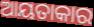
ଆୟତାକାର